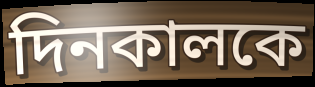
দিনকালকে